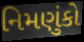
નિમણુંકો